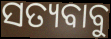
ସତ୍ୟବାବୁ